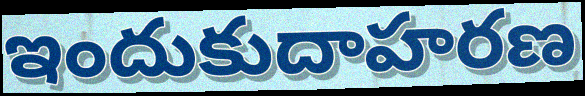
ఇందుకుదాహరణ